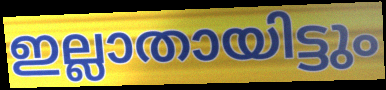
ഇല്ലാതായിട്ടും